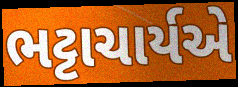
ભટ્ટાચાર્યએ